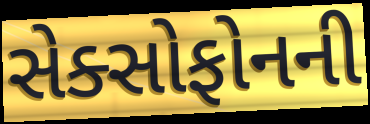
સેક્સોફોનની